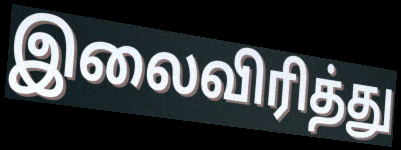
இலைவிரித்து